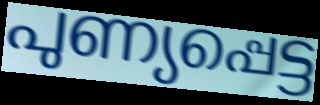
പുണ്യപ്പെട്ട